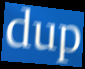
dup